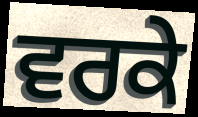
ਵਰਕੇ